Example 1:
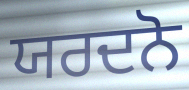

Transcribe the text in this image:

ਯਰਦਨੋ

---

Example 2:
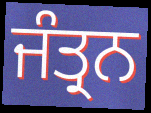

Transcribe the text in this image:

ਜੰਤ੍ਰਨ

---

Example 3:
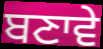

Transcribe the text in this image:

ਬਣਾਵੇ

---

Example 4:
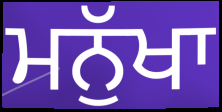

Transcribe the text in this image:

ਮਨੁੱਖਾ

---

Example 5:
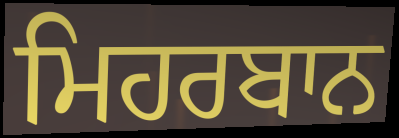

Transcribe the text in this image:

ਮਿਹਰਬਾਨ